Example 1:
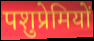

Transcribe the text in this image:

पशुप्रेमियों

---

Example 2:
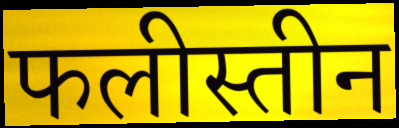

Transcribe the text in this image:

फलीस्तीन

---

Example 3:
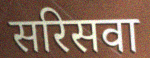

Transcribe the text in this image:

सरिसवा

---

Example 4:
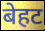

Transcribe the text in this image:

बेहट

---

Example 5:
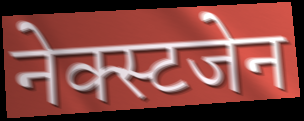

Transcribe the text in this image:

नेक्स्टजेन